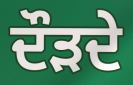
ਦੌੜਦੇ